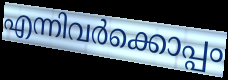
എന്നിവർക്കൊപ്പം